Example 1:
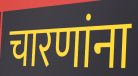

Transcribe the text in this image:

चारणांना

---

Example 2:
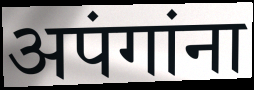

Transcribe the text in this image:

अपंगांना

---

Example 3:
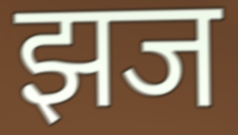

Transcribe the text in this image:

झज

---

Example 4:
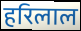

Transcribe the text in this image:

हरिलाल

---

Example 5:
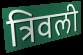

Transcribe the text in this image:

त्रिवली